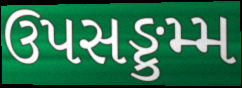
ઉપસઙ્કમ્મ